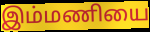
இம்மணியை